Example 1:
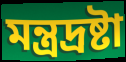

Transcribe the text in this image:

মন্ত্রদ্রষ্টা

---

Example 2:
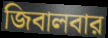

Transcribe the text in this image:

জিবালবার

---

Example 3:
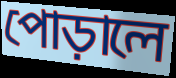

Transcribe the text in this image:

পোড়ালে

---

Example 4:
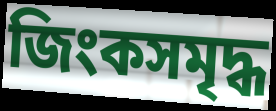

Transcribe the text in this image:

জিংকসমৃদ্ধ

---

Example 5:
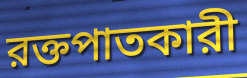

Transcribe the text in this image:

রক্তপাতকারী